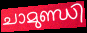
ചാമുണ്ഡി